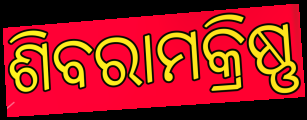
ଶିବରାମକ୍ରିଷ୍ଣ